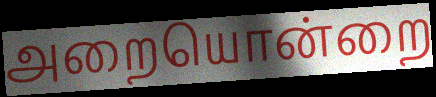
அறையொன்றை